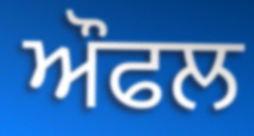
ਔਫਲ